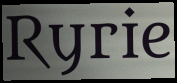
Ryrie